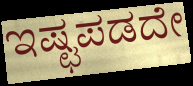
ಇಷ್ಟಪಡದೇ